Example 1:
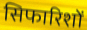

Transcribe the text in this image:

सिफारिशों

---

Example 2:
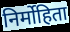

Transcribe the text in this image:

निर्मोहिता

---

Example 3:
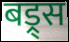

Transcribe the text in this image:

बड्र्स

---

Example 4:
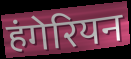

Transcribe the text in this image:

हंगेरियन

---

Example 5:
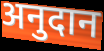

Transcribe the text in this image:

अनुदान